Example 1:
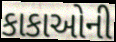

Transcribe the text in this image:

કાકાઓની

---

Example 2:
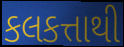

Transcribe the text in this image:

કલકત્તાથી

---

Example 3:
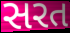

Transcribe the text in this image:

સરત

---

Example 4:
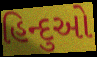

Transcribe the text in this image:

હિન્દુઓ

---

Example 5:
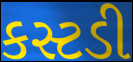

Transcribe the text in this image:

કસ્ટડી